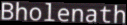
Bholenath